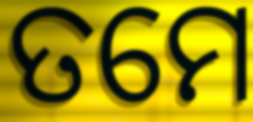
ତମେ